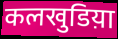
कलखुडिय़ा